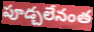
పూడ్చలేనంత